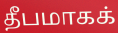
தீபமாகக்